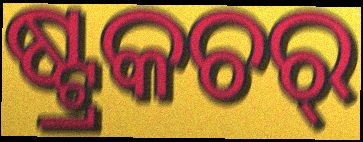
ଷ୍ଟ୍ରକଚର୍